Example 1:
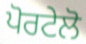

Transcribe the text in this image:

ਪੋਰਟੇਲੋ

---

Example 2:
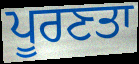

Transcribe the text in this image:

ਪੂਰਣਤਾ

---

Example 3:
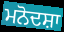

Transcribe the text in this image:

ਮਨੋਦਸ਼ਾ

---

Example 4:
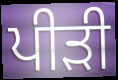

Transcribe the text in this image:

ਪੀੜੀ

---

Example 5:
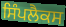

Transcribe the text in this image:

ਸਿੰਪਲੈਕਸ